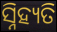
ସ୍ନିହ୍ୟତି